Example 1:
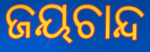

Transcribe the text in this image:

ଜୟଚାନ୍ଦ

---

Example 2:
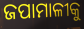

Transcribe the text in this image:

ଜପାମାଳୀକୁ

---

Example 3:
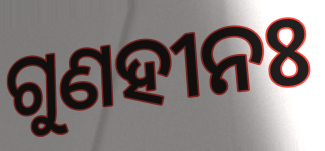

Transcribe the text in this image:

ଗୁଣହୀନଃ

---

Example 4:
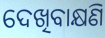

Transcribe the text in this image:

ଦେଖିବାକ୍ଷଣି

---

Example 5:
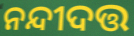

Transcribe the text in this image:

ନନ୍ଦୀଦତ୍ତ